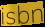
isbn